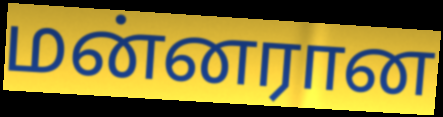
மன்னரான